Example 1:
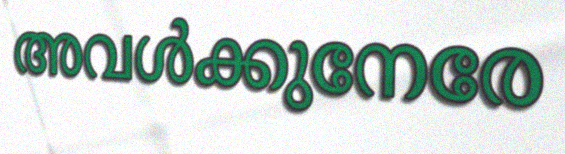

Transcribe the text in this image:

അവൾക്കുനേരേ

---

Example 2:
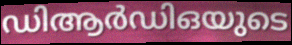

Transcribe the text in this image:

ഡിആർഡിഒയുടെ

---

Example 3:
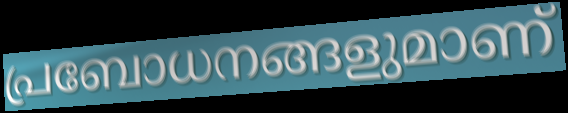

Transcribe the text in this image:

പ്രബോധനങ്ങളുമാണ്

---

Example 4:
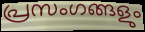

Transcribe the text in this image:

പ്രസംഗങ്ങളും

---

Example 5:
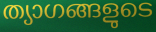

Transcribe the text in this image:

ത്യാഗങ്ങളുടെ